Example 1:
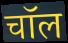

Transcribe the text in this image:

चॉल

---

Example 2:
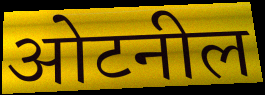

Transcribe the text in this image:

ओटनील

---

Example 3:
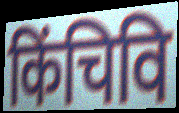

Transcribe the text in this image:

किंचिवि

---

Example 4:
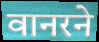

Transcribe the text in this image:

वानरने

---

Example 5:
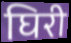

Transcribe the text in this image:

घिरी